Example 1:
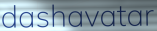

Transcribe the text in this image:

dashavatar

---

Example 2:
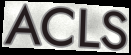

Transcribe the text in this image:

ACLS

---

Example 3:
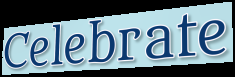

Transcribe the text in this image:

Celebrate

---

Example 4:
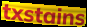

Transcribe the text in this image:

txstains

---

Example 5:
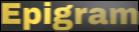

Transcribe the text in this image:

Epigram